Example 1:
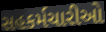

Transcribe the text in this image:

સહકર્મચારીઓ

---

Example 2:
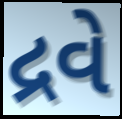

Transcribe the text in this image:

દ્રવે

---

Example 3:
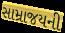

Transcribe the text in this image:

સામ્રાજયની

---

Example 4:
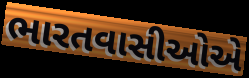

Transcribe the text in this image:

ભારતવાસીઓએ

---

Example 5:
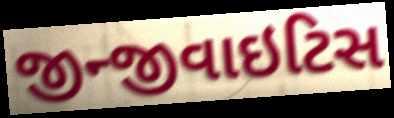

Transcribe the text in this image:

જીન્જીવાઇટિસ